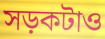
সড়কটাও